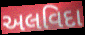
અલવિદા